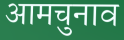
आमचुनाव